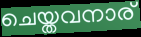
ചെയ്തവനാര്